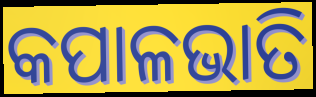
କପାଳଭାତି